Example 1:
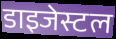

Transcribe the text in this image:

डाइजेस्टल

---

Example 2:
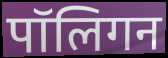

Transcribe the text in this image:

पॉलिगन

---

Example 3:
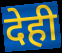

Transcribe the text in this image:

देही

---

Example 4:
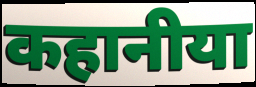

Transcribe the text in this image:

कहानीया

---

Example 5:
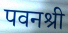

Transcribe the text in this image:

पवनश्री